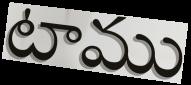
టాము